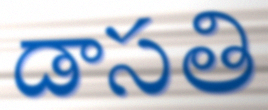
డాసతి